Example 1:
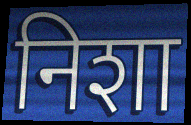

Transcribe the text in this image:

निशा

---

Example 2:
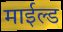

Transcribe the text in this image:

माईल्ड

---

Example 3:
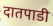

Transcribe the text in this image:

दातपाडी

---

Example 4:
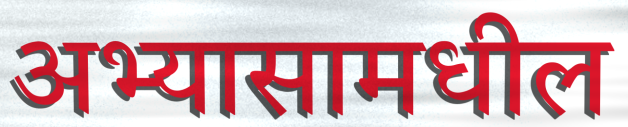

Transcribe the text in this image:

अभ्यासामधील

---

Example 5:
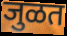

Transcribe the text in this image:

जुळत